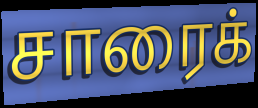
சாரைக்